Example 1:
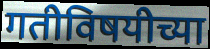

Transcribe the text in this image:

गतीविषयीच्या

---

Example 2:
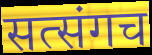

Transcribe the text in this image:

सत्संगच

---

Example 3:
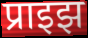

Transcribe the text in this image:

प्राइझ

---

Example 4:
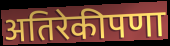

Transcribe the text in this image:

अतिरेकीपणा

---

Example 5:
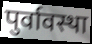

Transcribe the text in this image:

पुर्वावस्था